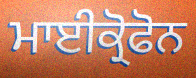
ਮਾਈਕ੍ਰੋਫੋਨ